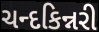
ચન્દકિન્નરી